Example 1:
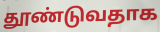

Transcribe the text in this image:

தூண்டுவதாக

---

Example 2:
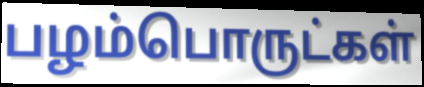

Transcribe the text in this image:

பழம்பொருட்கள்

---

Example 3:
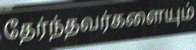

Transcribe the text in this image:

தேர்ந்தவர்களையும்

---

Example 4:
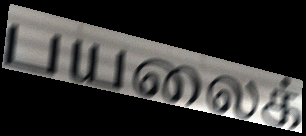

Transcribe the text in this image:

பயலைக்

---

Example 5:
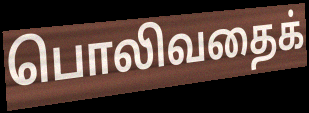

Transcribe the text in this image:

பொலிவதைக்